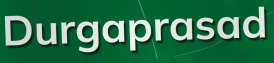
Durgaprasad